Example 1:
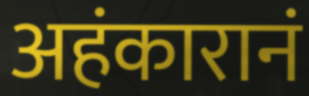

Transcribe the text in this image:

अहंकारानं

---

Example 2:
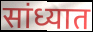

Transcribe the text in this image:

सांध्यात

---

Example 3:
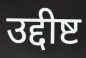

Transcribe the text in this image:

उद्दीष्ट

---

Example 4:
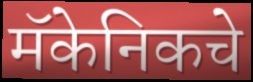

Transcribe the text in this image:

मॅकेनिकचे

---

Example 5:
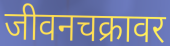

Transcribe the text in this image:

जीवनचक्रावर